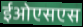
ईओएसएस